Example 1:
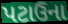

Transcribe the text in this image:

પટાઉના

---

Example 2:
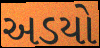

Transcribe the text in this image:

અડયો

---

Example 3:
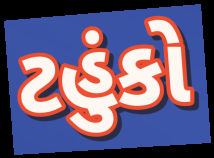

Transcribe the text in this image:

ટહુંકો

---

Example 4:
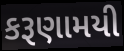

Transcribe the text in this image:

કરૂણામયી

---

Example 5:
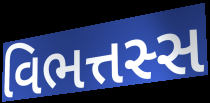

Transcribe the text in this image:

વિભત્તસ્સ